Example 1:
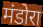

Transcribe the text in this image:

मंडोरा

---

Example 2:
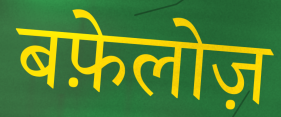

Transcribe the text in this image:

बफ़ेलोज़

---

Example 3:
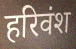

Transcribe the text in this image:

हरिवंश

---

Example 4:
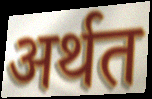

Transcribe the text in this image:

अर्थत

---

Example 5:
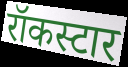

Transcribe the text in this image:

रॉकस्टार